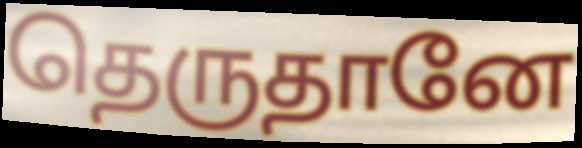
தெருதானே